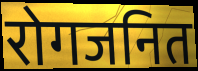
रोगजनित